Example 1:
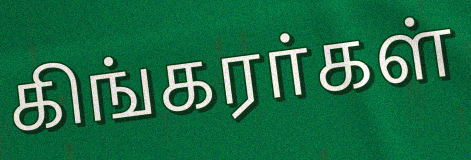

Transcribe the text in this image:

கிங்கரர்கள்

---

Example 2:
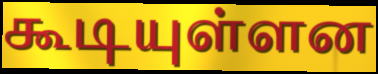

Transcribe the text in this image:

கூடியுள்ளன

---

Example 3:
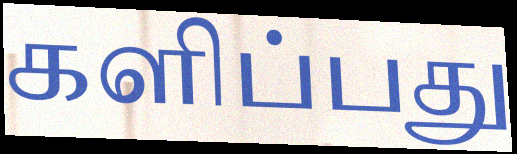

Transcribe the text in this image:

களிப்பது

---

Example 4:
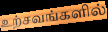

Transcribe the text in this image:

உற்சவங்களில்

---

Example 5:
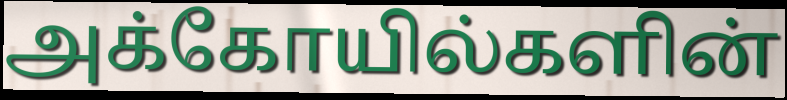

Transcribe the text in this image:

அக்கோயில்களின்